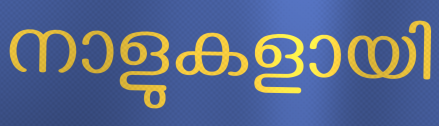
നാളുകളായി